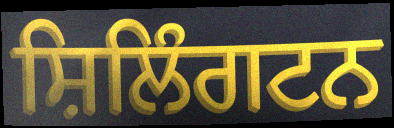
ਸ਼ਿਲਿੰਗਟਨ